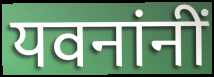
यवनांनीं